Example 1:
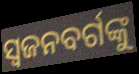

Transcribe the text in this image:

ସ୍ଵଜନବର୍ଗଙ୍କୁ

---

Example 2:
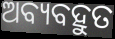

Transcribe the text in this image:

ଅବ୍ୟବହୁତ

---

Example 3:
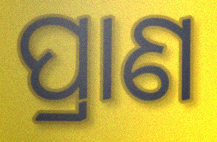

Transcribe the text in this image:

ପ୍ରାଣ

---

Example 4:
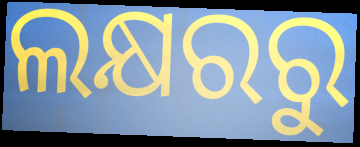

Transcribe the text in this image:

ଲକ୍ଷରରୁ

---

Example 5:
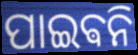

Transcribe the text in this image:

ପାଇଵନି